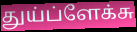
துய்ப்ளேக்சு